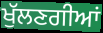
ਖੁੱਲਣਗੀਆਂ